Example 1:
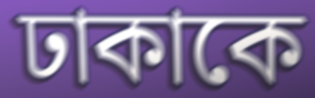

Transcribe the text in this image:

ঢাকাকে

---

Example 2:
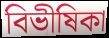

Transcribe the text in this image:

বিভীষিকা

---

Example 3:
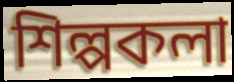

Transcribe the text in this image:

শিল্পকলা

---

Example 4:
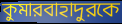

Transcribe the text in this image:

কুমারবাহাদুরকে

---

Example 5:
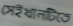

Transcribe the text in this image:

সেইখানটিতে